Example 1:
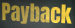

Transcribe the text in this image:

Payback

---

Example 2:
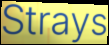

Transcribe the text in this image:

Strays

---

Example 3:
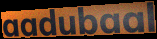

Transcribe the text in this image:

aadubaal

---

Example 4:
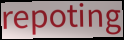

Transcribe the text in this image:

repoting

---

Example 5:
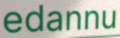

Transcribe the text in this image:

edannu